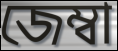
জেম্বা